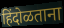
हिंदोळताना